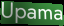
Upama